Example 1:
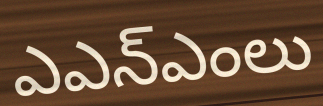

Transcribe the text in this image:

ఎఎన్ఎంలు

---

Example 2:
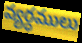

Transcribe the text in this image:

వ్యర్ధములు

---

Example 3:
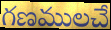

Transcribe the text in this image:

గణములచే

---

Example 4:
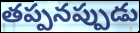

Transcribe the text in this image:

తప్పనప్పుడు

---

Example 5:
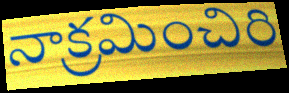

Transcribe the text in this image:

నాక్రమించిరి